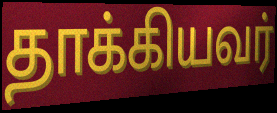
தாக்கியவர்